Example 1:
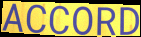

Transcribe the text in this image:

ACCORD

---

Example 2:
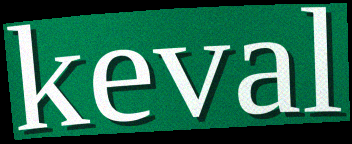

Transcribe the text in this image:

keval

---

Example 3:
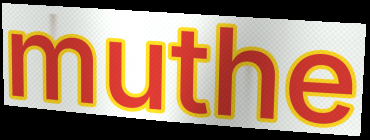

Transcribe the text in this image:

muthe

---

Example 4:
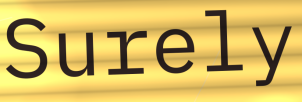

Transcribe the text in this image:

Surely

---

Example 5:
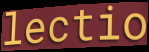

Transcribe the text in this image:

lectio